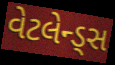
વેટલેન્ડ્સ